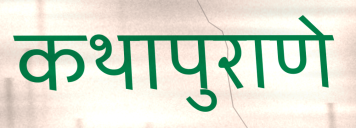
कथापुराणे